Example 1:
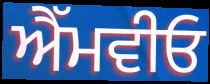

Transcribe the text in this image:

ਐੱਮਵੀਓ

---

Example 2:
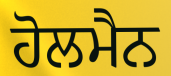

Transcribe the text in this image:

ਹੋਲਮੈਨ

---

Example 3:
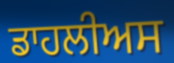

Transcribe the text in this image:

ਡਾਹਲੀਅਸ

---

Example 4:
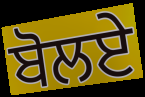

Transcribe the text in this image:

ਬੋਲਏ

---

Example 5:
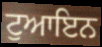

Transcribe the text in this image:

ਟੁਆਇਨ